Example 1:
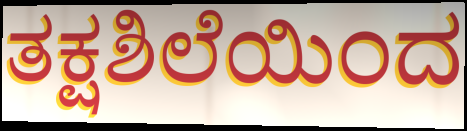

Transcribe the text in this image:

ತಕ್ಷಶಿಲೆಯಿಂದ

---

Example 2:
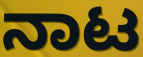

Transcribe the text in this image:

ನಾಟ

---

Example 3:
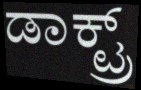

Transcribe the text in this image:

ಡಾಕ್ಟ್ರ್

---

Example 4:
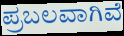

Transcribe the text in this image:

ಪ್ರಬಲವಾಗಿವೆ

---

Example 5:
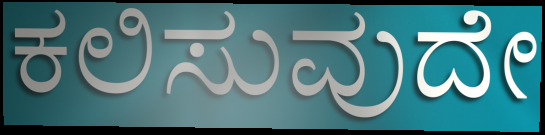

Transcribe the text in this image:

ಕಲಿಸುವುದೇ